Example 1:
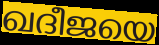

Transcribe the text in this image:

ഖദീജയെ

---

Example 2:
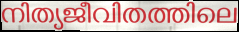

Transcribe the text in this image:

നിത്യജീവിതത്തിലെ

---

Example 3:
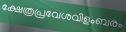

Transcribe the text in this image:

ക്ഷേത്രപ്രവേശവിളംബരം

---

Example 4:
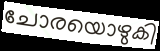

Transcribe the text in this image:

ചോരയൊഴുകി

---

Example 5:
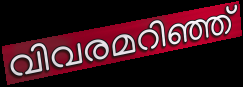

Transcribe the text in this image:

വിവരമറിഞ്ഞ്